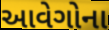
આવેગોના